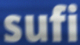
sufi